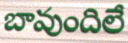
బావుందిలే